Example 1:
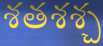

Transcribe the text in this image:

శతశశ్చ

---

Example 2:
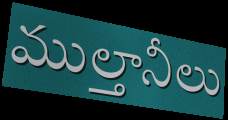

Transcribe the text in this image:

ముల్తానీలు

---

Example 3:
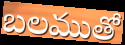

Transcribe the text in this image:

బలముతో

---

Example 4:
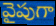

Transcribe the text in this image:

వైపుగా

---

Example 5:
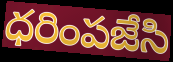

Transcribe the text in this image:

ధరింపజేసి